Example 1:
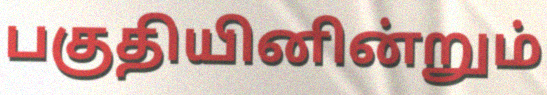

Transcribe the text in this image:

பகுதியினின்றும்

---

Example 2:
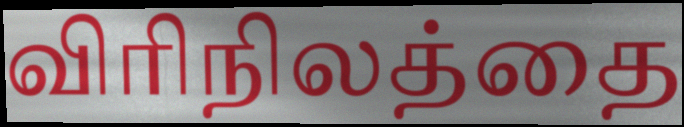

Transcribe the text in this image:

விரிநிலத்தை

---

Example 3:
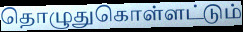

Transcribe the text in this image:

தொழுதுகொள்ளட்டும்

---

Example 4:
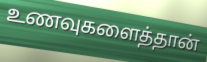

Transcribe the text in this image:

உணவுகளைத்தான்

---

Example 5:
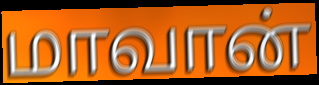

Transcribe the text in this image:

மாவான்